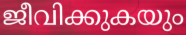
ജീവിക്കുകയും